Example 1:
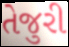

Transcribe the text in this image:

તેજુરી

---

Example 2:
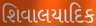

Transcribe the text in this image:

શિવાલયાદિક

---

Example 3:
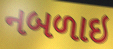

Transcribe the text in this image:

નબળાઇ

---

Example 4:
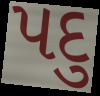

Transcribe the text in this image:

પદુ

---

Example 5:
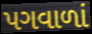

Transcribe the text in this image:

પગવાળાં